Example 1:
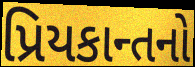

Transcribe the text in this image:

પ્રિયકાન્તનો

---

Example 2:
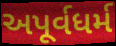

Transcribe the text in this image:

અપૂર્વધર્મ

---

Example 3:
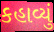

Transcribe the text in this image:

કહાવ્યું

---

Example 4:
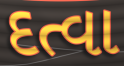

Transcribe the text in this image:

દત્વા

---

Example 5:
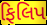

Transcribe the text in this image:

ફિલિપ